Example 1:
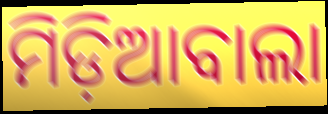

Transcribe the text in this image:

ମିଡ଼ିଆବାଲା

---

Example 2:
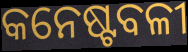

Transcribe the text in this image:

କନେଷ୍ଟବଳୀ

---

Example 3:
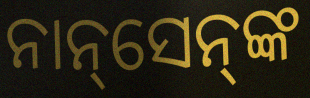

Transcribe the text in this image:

ନାନ୍‌ସେନ୍‌ଙ୍କ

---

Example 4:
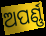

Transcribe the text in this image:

ଅପର୍ଣ୍ଣ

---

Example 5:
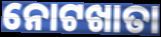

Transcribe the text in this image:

ନୋଟଖାତା